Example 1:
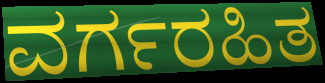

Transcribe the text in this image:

ವರ್ಗರಹಿತ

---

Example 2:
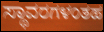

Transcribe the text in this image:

ಸ್ಥಾವರಗಳಂತಹ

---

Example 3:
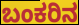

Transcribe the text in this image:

ಬಂಕರಿನ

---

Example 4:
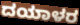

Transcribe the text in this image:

ದಯಾಳರ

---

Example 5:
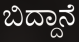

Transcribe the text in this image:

ಬಿದ್ದಾನೆ